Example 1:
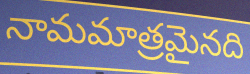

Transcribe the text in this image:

నామమాత్రమైనది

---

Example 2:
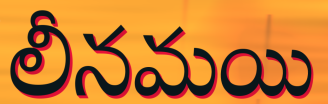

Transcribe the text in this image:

లీనమయి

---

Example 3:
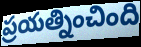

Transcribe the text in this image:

ప్రయత్నించింది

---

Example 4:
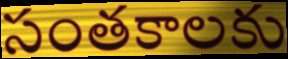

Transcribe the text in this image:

సంతకాలకు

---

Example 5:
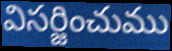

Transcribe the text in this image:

విసర్జించుము